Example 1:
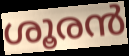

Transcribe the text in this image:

ശൂരൻ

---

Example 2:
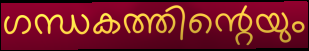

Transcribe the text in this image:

ഗന്ധകത്തിന്റെയും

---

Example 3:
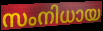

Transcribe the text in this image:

സംനിധായ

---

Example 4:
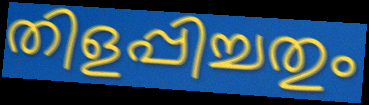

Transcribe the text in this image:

തിളപ്പിച്ചതും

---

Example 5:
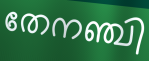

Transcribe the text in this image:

തേനഞ്ചി